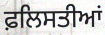
ਫ਼ਲਿਸਤੀਆਂ